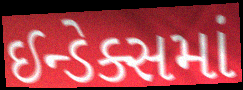
ઈન્ડેક્સમાં